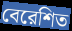
বেরেশিত